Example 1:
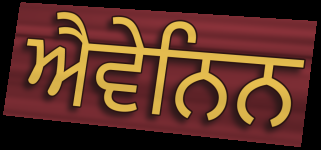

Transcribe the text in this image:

ਐਵੇਨਿਨ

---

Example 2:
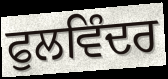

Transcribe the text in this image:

ਫੁਲਵਿੰਦਰ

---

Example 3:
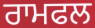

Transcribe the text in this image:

ਰਾਮਫਲ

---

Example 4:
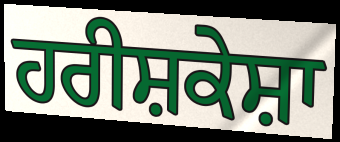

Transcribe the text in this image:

ਹਰੀਸ਼ਕੇਸ਼ਾ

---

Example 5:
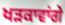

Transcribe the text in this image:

ਖੜਕਾਵਾਂਗੇ